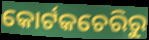
କୋର୍ଟକଚେରିରୁ